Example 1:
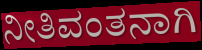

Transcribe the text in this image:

ನೀತಿವಂತನಾಗಿ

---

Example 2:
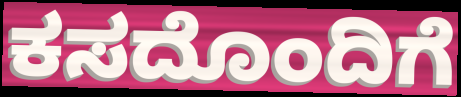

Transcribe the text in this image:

ಕಸದೊಂದಿಗೆ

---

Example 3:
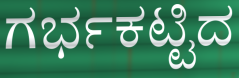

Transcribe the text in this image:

ಗರ್ಭಕಟ್ಟಿದ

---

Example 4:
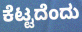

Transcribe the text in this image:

ಕೆಟ್ಟದೆಂದು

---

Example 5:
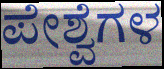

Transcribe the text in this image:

ಪೇಶ್ವೆಗಳ